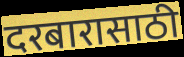
दरबारासाठी